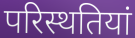
परिस्थतियां